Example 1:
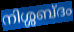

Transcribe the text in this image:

നിശ്ശബ്ദം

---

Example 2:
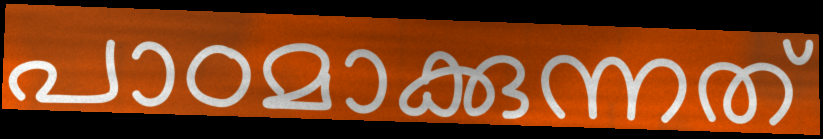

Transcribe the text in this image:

പാഠമാക്കുന്നത്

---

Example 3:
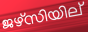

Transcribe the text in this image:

ജഴ്സിയില്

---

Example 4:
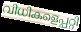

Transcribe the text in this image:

വിധികളെപ്പറ്റി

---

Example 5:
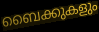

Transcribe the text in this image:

ബൈക്കുകളും